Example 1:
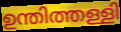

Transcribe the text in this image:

ഉന്തിത്തള്ളി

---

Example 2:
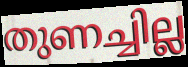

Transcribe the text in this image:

തുണച്ചില്ല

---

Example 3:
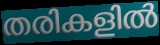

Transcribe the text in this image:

തരികളിൽ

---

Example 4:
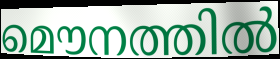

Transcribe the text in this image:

മൌനത്തിൽ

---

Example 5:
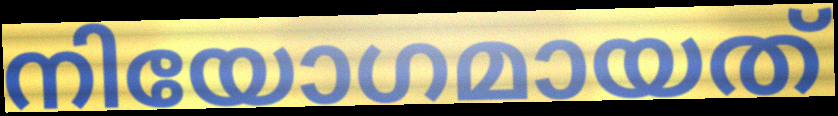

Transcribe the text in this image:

നിയോഗമായത്